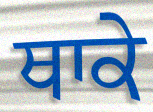
ਥਾਕੇ